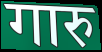
गारु